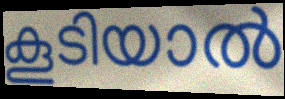
കൂടിയാൽ